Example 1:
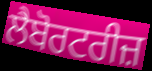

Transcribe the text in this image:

ਲੈਬੋਰਟਰੀਜ਼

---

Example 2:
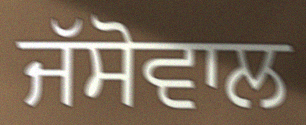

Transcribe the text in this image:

ਜੱਸੋਵਾਲ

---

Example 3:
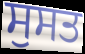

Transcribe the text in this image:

ਸੁਸਤ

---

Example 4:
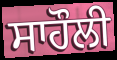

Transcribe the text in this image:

ਸਾਹੌਲੀ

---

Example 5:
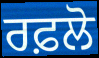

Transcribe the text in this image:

ਰਫ਼ਲੋ